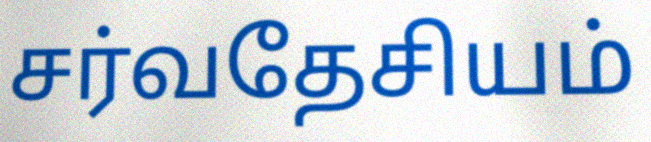
சர்வதேசியம்